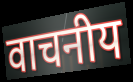
वाचनीय